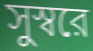
সুস্বরে